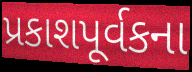
પ્રકાશપૂર્વકના